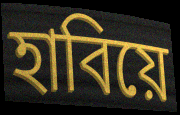
হাবিয়ে